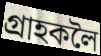
গ্ৰাহকলৈ